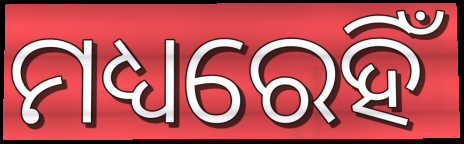
ମଧ୍ୟରେହିଁ